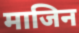
माजिन